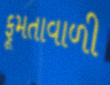
ફૂમતાવાળી